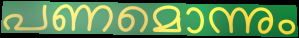
പണമൊന്നും